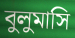
বুলুমাসি